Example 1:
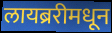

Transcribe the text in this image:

लायब्ररीमधून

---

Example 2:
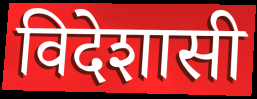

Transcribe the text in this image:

विदेशासी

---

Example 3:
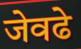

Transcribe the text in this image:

जेवढे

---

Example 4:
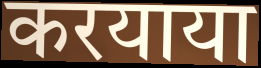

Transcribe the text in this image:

करयाया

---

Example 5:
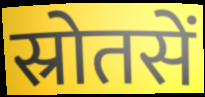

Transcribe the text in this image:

स्रोतसें